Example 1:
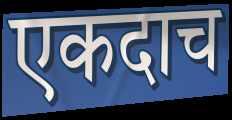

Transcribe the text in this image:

एकदाच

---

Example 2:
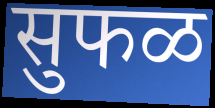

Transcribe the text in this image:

सुफळ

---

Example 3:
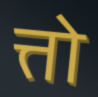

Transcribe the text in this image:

त्तो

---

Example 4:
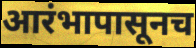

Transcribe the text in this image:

आरंभापासूनच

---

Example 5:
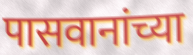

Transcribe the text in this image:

पासवानांच्या